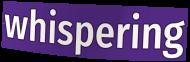
whispering